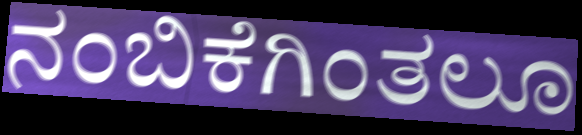
ನಂಬಿಕೆಗಿಂತಲೂ